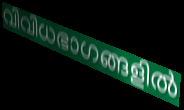
വിവിധഭാഗങ്ങളിൽ